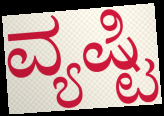
ವ್ಯಷ್ಟಿ